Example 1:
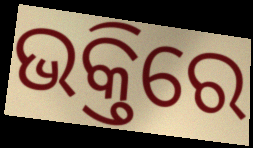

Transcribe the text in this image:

ଭକ୍ତିରେ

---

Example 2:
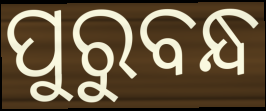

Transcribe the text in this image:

ପୁରୁବନ୍ଧ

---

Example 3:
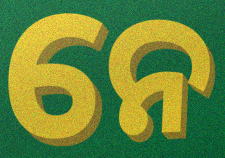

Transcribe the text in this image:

ନେ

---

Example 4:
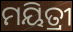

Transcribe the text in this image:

ମୟିତ୍ରୀ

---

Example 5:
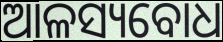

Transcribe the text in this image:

ଆଳସ୍ୟବୋଧ